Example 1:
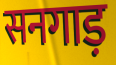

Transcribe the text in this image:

सनगाड़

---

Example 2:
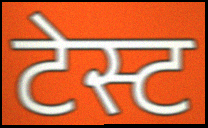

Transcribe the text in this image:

टेस्‍ट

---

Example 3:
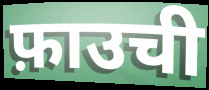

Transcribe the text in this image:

फ़ाउची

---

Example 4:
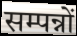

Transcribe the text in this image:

सम्पन्नों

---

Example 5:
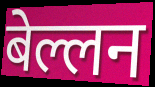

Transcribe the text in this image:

बेल्लन